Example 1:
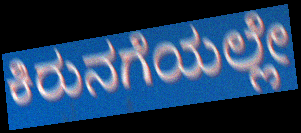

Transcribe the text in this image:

ಕಿರುನಗೆಯಲ್ಲೇ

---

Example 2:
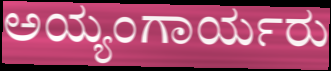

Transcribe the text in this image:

ಅಯ್ಯಂಗಾರ್ಯರು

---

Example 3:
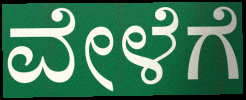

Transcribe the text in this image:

ವೇಳೆಗೆ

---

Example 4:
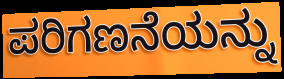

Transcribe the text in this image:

ಪರಿಗಣನೆಯನ್ನು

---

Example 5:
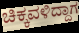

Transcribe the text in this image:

ಚಿಕ್ಕವಳಿದ್ದಾಗ